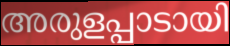
അരുളപ്പാടായി